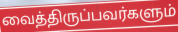
வைத்திருப்பவர்களும்